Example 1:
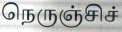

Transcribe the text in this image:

நெருஞ்சிச்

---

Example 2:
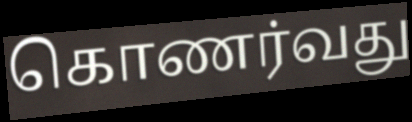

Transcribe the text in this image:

கொணர்வது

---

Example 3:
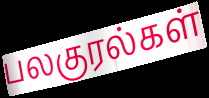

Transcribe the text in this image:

பலகுரல்கள்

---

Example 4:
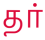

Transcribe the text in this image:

தர்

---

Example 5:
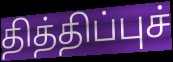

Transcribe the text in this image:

தித்திப்புச்